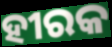
ହୀରକ